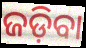
ଜଡ଼ିବା